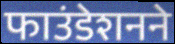
फाउंडेशनने